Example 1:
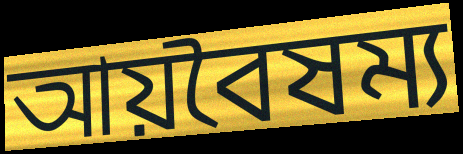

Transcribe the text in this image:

আয়বৈষম্য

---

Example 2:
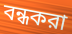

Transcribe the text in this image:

বন্ধকরা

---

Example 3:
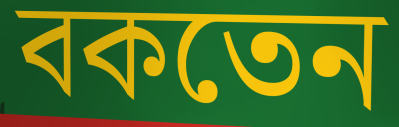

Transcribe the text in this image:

বকতেন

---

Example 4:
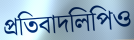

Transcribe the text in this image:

প্রতিবাদলিপিও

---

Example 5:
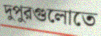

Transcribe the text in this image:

দুপুরগুলোতে